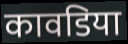
कावडिया